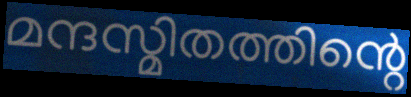
മന്ദസ്മിതത്തിന്റെ